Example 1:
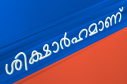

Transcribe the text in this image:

ശിക്ഷാർഹമാണ്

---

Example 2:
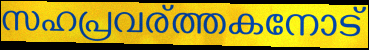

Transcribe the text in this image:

സഹപ്രവര്ത്തകനോട്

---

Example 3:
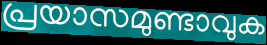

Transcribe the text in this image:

പ്രയാസമുണ്ടാവുക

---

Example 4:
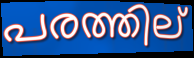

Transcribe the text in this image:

പരത്തില്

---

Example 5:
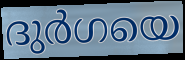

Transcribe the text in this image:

ദുർഗയെ